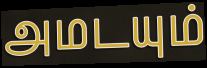
அமடயும்